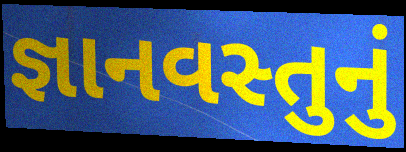
જ્ઞાનવસ્તુનું